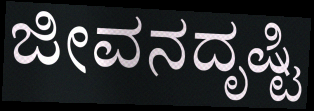
ಜೀವನದೃಷ್ಟಿ